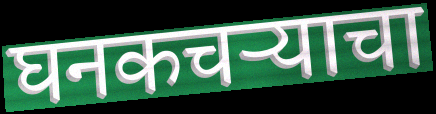
घनकचऱ्याचा